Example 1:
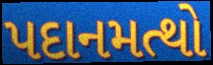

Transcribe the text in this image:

પદાનમત્થો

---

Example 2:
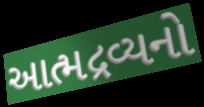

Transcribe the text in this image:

આત્મદ્રવ્યનો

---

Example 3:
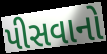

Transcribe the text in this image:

પીસવાનો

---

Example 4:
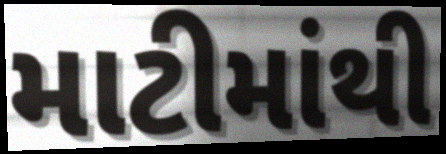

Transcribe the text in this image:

માટીમાંથી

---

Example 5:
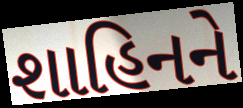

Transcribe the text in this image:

શાહિનને